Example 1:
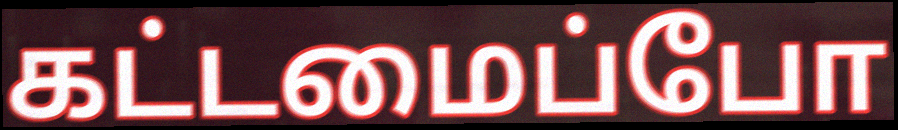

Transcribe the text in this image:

கட்டமைப்போ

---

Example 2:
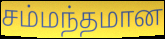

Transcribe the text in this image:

சம்மந்தமான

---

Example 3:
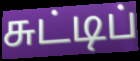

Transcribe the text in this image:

சுட்டிப்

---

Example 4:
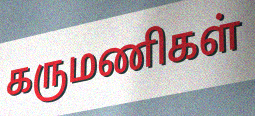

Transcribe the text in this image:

கருமணிகள்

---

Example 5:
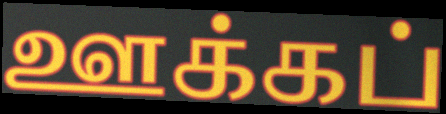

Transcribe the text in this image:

ஊக்கப்